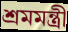
শ্রমমন্ত্রী